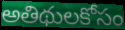
అతిథులకోసం